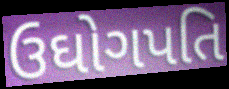
ઉઘોગપતિ